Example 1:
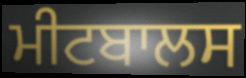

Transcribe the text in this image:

ਮੀਟਬਾਲਸ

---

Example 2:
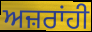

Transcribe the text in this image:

ਅਜ਼ਰਾਂਹੀ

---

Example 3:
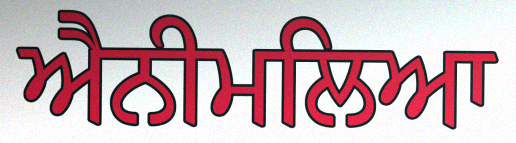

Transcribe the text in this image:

ਐਨੀਮਲਿਆ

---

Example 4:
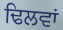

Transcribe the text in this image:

ਢਿਲਵਾਂ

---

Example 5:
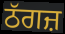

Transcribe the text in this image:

ਠੱਗਜ਼